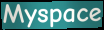
Myspace